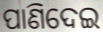
ପାଣିଦେଇ